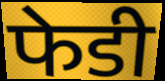
फेडी